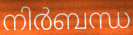
നിർബന്ധ